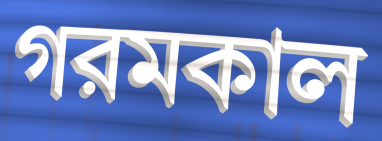
গরমকাল